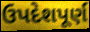
ઉપદેશપૂર્ણ